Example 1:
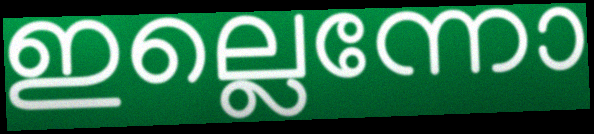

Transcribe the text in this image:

ഇല്ലെന്നോ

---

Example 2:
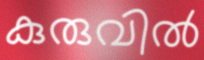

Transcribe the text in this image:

കുരുവിൽ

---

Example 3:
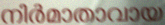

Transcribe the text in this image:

നിർമാതാവായ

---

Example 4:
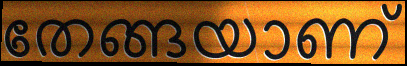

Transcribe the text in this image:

തേങ്ങയാണ്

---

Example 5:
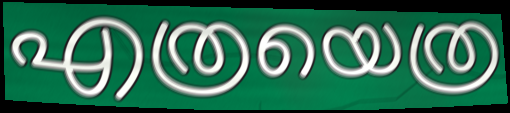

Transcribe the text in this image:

എത്രയെത്ര